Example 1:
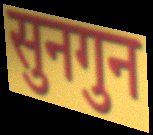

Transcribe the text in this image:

सुनगुन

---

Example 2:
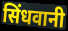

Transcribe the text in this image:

सिंधवानी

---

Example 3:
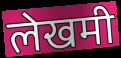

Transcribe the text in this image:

लेखमी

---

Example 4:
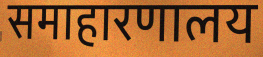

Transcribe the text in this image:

समाहारणालय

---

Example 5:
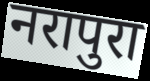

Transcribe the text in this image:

नरापुरा